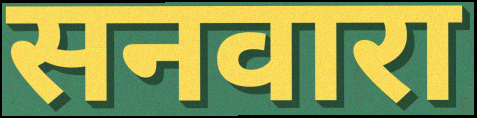
सनवारा